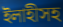
ইলাহীসহ